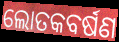
ଲୋତକବର୍ଷଣ